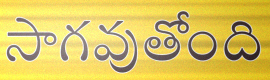
సాగవుతోంది